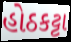
હોઠકટ્ટા